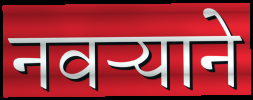
नवऱ्याने